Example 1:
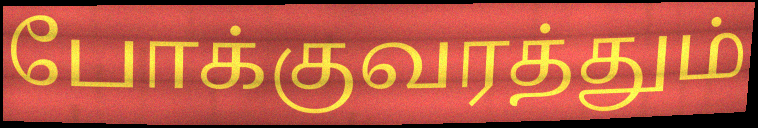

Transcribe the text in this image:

போக்குவரத்தும்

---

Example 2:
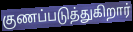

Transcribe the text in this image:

குணப்படுத்துகிறார்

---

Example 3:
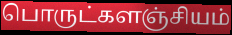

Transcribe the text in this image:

பொருட்களஞ்சியம்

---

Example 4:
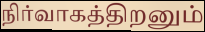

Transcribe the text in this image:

நிர்வாகத்திறனும்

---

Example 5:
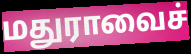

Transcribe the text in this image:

மதுராவைச்